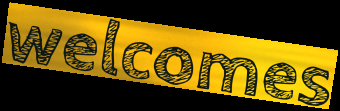
welcomes